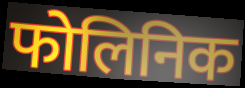
फोलिनिक